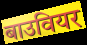
बाउवियर